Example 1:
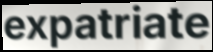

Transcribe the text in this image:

expatriate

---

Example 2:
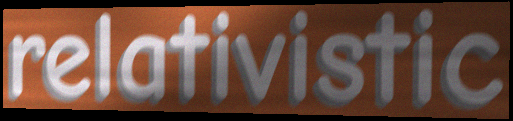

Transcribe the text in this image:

relativistic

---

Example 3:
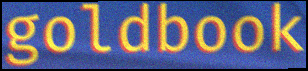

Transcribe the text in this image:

goldbook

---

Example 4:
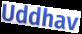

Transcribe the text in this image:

Uddhav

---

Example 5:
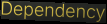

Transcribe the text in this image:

Dependency